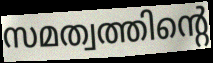
സമത്വത്തിന്റെ